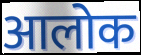
आलोक